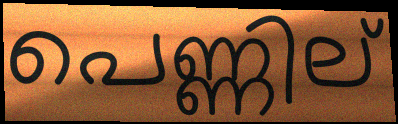
പെണ്ണില്